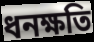
ধনক্ষতি